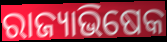
ରାଜ୍ୟାଭିଷେକ